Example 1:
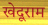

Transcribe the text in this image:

खेदूराम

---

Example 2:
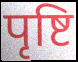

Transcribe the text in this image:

पृष्टि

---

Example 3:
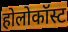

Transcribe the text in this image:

होलोकॉस्ट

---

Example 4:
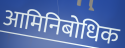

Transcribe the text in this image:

आमिनिबोधिक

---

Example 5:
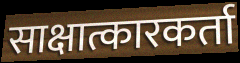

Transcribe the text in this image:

साक्षात्कारकर्ता